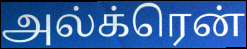
அல்க்ரென்